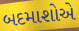
બદમાશોએ